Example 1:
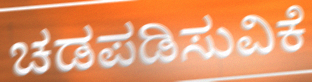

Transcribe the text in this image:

ಚಡಪಡಿಸುವಿಕೆ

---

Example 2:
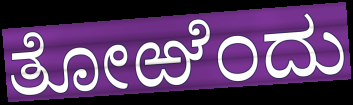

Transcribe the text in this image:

ತೋಱೆಂದು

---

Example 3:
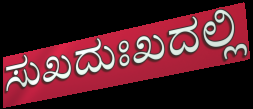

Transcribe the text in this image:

ಸುಖದುಃಖದಲ್ಲಿ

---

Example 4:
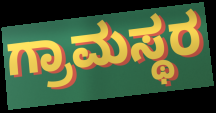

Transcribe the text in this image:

ಗ್ರಾಮಸ್ಥರ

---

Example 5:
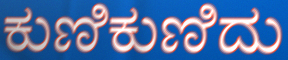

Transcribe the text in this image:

ಕುಣಿಕುಣಿದು